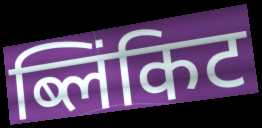
ब्लिंकिट